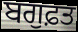
ਬਗੁਫ਼ਤ